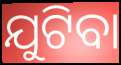
ଯୁଟିବା